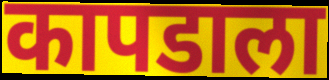
कापडाला